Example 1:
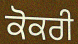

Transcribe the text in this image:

ਕੋਕਰੀ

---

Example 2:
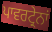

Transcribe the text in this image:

ਪਾਵਰਟ੍ਰੇਨਾਂ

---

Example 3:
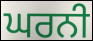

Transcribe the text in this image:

ਘਰਨੀ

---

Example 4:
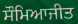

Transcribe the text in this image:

ਸੌਮਿਆਜੀਤ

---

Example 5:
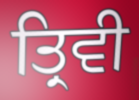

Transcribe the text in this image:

ਤ੍ਰਿਵੀ